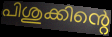
പിശുക്കിന്റെ